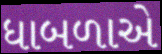
ધાબળાએ